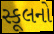
સ્કૂલનો